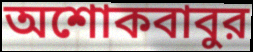
অশোকবাবুর